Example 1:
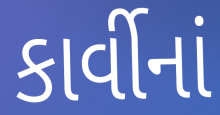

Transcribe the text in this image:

કાર્વીનાં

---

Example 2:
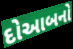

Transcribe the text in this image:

દોઆબનો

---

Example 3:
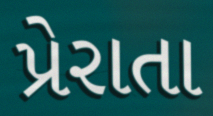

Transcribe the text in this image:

પ્રેરાતા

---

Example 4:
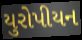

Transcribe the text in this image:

યુરોપીયન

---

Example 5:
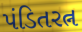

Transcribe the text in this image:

પંડિતરત્ન